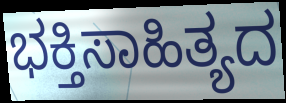
ಭಕ್ತಿಸಾಹಿತ್ಯದ